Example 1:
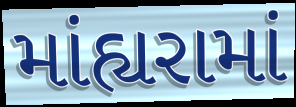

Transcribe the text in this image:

માંહ્યરામાં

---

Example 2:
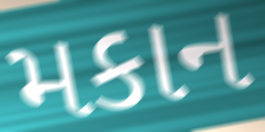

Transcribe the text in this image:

મકાન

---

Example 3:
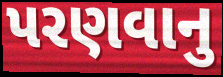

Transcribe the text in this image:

પરણવાનુ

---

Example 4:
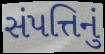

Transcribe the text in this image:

સંપત્તિનું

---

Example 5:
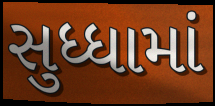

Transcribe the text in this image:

સુધ્ધામાં